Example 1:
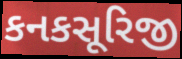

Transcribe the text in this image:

કનકસૂરિજી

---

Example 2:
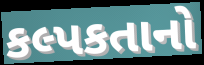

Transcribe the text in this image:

કલ્પકતાનો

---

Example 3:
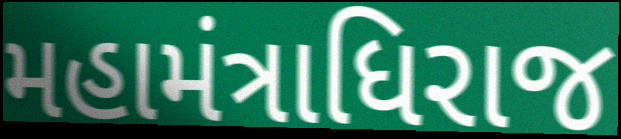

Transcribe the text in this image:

મહામંત્રાધિરાજ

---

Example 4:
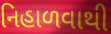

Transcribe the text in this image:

નિહાળવાથી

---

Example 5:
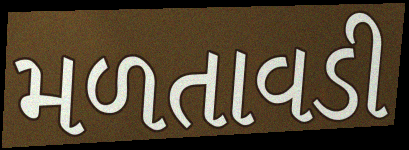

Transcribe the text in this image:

મળતાવડી